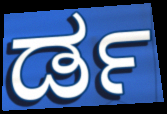
ರ್ಡ